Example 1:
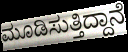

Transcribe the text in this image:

ಮೂಡಿಸುತ್ತಿದ್ದಾನೆ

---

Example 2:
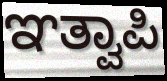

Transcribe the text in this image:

ಞತ್ವಾಪಿ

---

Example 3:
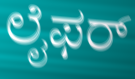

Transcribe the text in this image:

ಲೈಫರ್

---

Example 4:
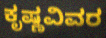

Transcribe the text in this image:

ಕೃಷ್ಣವಿವರ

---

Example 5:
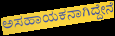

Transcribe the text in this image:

ಅಸಹಾಯಕನಾಗಿದ್ದೇನೆ